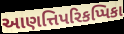
આણત્તિપરિકપ્પિકા